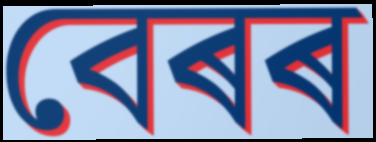
বেৰৰ